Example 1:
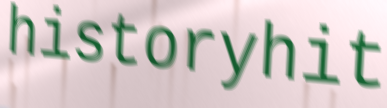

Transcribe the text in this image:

historyhit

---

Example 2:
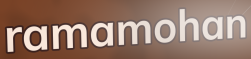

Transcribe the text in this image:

ramamohan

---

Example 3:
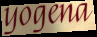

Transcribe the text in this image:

yogena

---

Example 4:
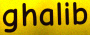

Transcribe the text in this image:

ghalib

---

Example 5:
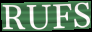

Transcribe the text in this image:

RUFS